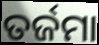
ତର୍ଜମା